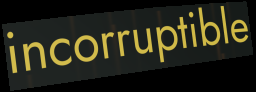
incorruptible